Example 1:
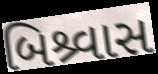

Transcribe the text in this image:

બિશ્ર્વાસ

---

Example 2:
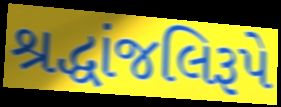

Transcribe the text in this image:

શ્રદ્ધાંજલિરૂપે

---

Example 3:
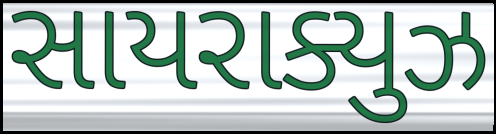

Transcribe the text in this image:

સાયરાક્યુઝ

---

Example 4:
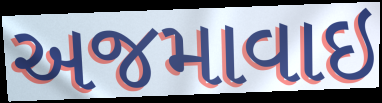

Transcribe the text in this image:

અજમાવાઇ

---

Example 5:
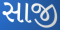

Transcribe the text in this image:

સાજી